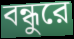
বন্ধুরে